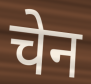
चेन